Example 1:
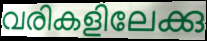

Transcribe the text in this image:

വരികളിലേക്കു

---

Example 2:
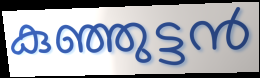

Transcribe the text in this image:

കുഞ്ഞുട്ടൻ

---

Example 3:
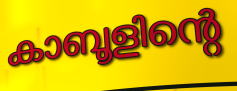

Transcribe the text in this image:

കാബൂളിന്റെ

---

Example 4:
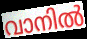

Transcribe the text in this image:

വാനിൽ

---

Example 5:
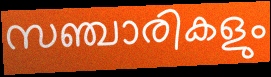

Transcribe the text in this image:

സഞ്ചാരികളും